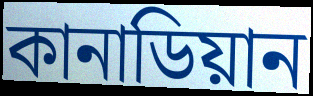
কানাডিয়ান